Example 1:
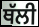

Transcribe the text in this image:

ਥੱਲੀ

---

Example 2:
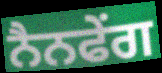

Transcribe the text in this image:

ਨੈਨਫੇਂਗ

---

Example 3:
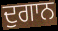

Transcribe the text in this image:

ਦੁਗਾਨ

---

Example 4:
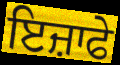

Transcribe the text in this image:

ਇਜ਼ਾਫੇ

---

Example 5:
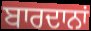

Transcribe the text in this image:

ਬਾਰਦਾਨਾਂ